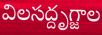
విలసద్దృగ్జాల